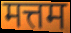
मत्तम